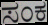
ಸಂಕ